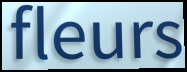
fleurs